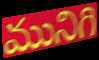
మునిగి